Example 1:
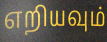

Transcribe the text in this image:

எறியவும்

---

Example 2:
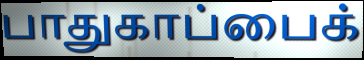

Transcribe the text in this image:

பாதுகாப்பைக்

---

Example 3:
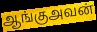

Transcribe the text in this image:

ஆங்குஅவன்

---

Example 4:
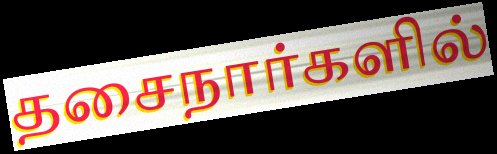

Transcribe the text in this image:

தசைநார்களில்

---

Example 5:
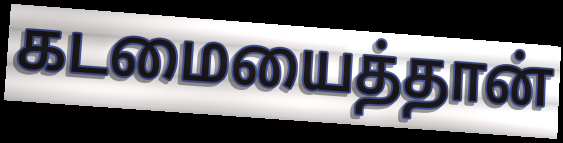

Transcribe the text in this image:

கடமையைத்தான்